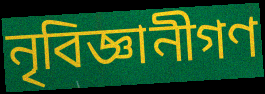
নৃবিজ্ঞানীগণ